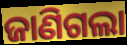
ଜାଣିଗଲା